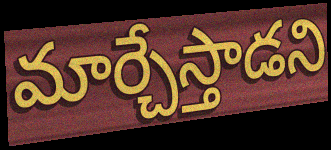
మార్చేస్తాడని